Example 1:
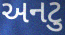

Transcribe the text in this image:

અનટુ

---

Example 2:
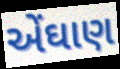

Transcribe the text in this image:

એંઘાણ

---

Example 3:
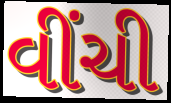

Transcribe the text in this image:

વીંચી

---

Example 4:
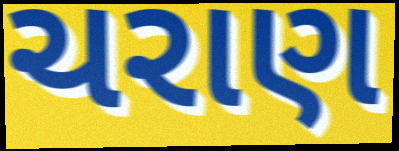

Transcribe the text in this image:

ચરાણ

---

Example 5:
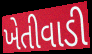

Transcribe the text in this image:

ખેતીવાડી